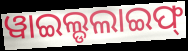
ୱାଇଲ୍ଡଲାଇଫ୍